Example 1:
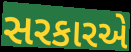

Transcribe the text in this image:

સરકારએ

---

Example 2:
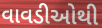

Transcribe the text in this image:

વાવડીઓથી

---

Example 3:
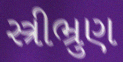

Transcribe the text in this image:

સ્ત્રીભ્રુણ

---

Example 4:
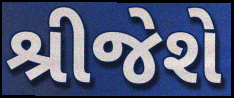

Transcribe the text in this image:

શ્રીજેશે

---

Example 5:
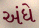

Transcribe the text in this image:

અંધે